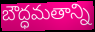
బౌద్ధమతాన్ని